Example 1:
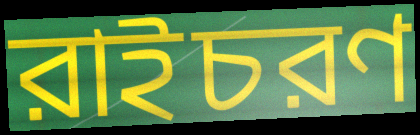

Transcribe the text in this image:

রাইচরণ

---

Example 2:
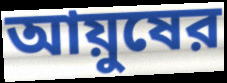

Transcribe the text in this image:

আয়ুষের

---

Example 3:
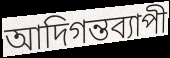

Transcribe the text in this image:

আদিগন্তব্যাপী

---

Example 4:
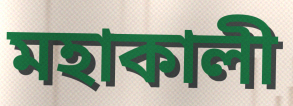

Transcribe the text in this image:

মহাকালী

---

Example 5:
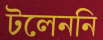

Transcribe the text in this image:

টলেননি